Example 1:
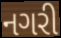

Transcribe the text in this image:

નગરી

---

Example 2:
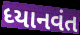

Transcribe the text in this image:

ધ્યાનવંત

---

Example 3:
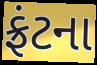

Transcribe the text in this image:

ફ્રંટના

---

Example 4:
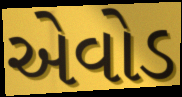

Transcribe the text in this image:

એવોડ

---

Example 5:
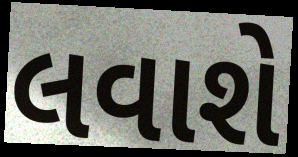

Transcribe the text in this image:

લવાશે